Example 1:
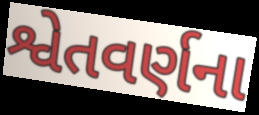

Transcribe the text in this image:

શ્વેતવર્ણના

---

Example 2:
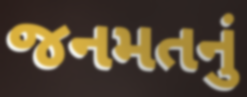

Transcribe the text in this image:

જનમતનું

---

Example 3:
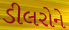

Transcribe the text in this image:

ડીલરોને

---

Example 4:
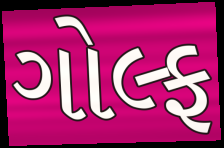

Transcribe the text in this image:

ગોલ્ફ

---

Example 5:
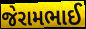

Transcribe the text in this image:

જેરામભાઈ